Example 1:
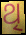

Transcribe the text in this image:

ଥି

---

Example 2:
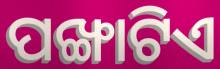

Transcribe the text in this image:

ପଙ୍ଖାଟିଏ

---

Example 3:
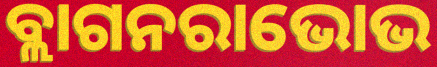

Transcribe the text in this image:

ବ୍ଲାଗନରାଭୋଭ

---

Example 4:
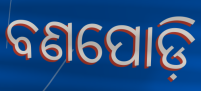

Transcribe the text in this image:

ବଣପୋଡ଼ି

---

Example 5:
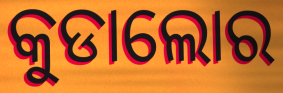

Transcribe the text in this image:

କୁଡାଲୋର